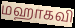
மஹாகவி